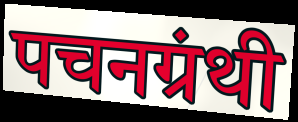
पचनग्रंथी